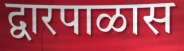
द्वारपाळास